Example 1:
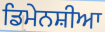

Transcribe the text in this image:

ਡਿਮੇਨਸ਼ੀਆ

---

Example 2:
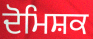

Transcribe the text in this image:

ਦੋਮਿਸ਼ਕ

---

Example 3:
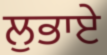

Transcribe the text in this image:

ਲੁਭਾਏ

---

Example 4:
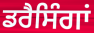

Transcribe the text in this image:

ਡਰੈਸਿੰਗਾਂ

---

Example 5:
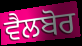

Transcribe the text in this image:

ਵੈਲਬੋਰ